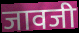
जावजी